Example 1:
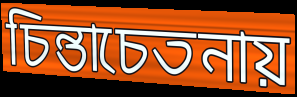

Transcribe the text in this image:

চিন্তাচেতনায়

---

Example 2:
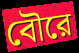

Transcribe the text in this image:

বৌরে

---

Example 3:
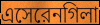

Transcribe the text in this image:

এসেরেনগিলা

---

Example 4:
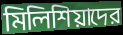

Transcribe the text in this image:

মিলিশিয়াদের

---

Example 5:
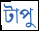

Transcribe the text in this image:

টাপু